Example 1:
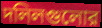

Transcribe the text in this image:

দলিলগুলোর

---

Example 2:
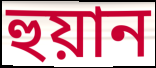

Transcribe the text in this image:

হুয়ান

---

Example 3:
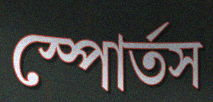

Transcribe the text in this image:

স্পোর্তস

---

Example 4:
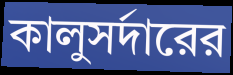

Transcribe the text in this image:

কালুসর্দারের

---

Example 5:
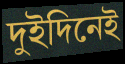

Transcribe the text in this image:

দুইদিনেই